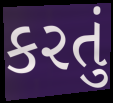
કરતું